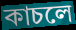
কাচলে